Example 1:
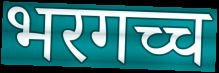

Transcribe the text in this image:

भरगच्च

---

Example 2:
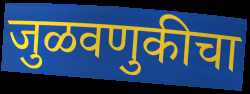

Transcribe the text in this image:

जुळवणुकीचा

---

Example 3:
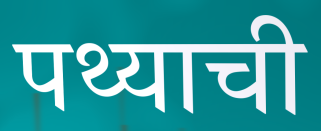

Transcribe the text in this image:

पथ्याची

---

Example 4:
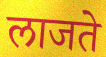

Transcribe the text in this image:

लाजते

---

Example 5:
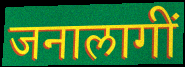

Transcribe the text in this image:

जनालागीं